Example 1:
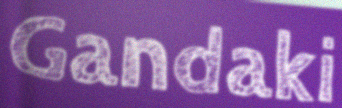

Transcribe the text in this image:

Gandaki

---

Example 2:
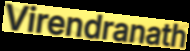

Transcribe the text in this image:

Virendranath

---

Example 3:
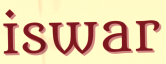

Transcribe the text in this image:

iswar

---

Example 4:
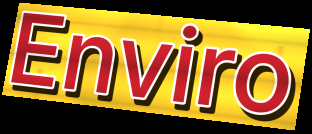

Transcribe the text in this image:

Enviro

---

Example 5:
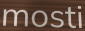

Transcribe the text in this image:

mosti